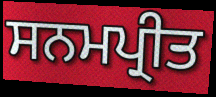
ਸਨਮਪ੍ਰੀਤ